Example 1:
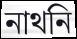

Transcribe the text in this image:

নাথনি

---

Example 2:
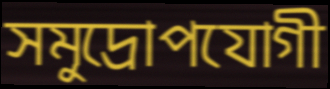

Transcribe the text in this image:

সমুদ্রোপযোগী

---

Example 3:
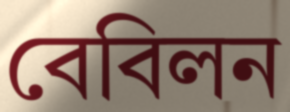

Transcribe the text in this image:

বেবিলন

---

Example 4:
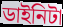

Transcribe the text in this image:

ডাইনিটা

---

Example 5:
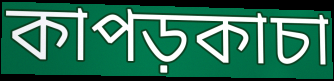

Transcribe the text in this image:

কাপড়কাচা